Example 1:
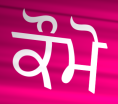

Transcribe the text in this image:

ਕੌਮੋ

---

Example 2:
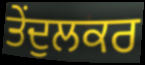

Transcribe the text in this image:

ਤੇਂਦੁਲਕਰ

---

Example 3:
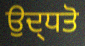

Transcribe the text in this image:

ਉਦ੍ਧਤੋ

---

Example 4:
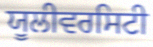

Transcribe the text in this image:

ਯੂਲੀਵਰਸਿਟੀ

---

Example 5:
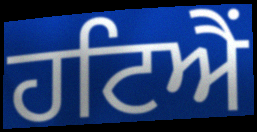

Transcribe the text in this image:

ਹਟਿਐਂ